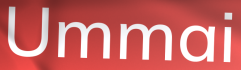
Ummai